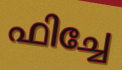
ഫിച്ചേ